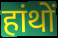
हांथों